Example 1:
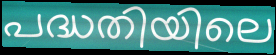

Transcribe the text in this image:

പദ്ധതിയിലെ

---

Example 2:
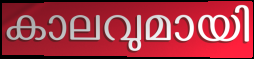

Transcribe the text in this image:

കാലവുമായി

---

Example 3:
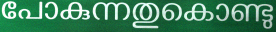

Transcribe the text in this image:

പോകുന്നതുകൊണ്ടു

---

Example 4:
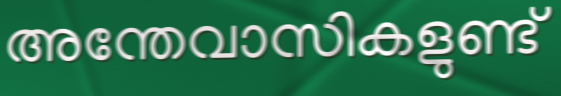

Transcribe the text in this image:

അന്തേവാസികളുണ്ട്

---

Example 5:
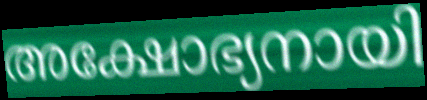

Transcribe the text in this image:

അക്ഷോഭ്യനായി